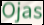
Ojas